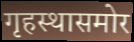
गृहस्थासमोर